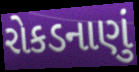
રોકડનાણું